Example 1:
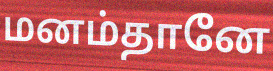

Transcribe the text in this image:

மனம்தானே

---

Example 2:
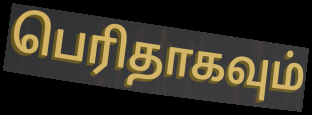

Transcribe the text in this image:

பெரிதாகவும்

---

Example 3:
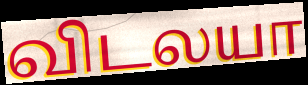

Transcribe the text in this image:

விடலயா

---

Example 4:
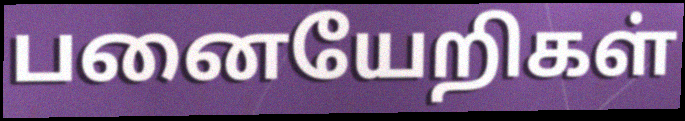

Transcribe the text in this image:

பனையேறிகள்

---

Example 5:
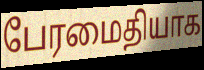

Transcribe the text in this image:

பேரமைதியாக